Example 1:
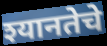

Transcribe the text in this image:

श्यानतेचे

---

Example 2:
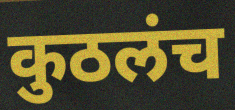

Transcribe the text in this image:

कुठलंच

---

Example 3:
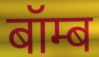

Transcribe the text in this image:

बॉम्ब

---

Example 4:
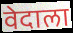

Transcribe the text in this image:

वेदाला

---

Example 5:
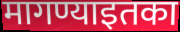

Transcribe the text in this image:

मागण्याइतका